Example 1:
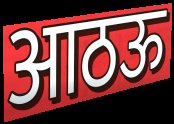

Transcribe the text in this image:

आठऊ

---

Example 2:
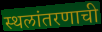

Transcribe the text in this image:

स्थलांतरणाची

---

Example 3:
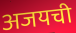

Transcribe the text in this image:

अजयची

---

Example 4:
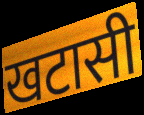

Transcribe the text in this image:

खटासी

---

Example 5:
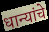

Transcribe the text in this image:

धान्यांचे